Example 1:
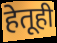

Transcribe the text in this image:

हेतूही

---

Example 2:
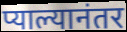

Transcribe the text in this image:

प्याल्यानंतर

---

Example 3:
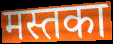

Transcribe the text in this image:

मस्तका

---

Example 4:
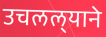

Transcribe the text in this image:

उचलल्याने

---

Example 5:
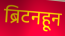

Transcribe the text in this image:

ब्रिटनहून